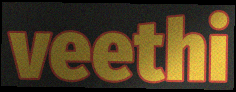
veethi